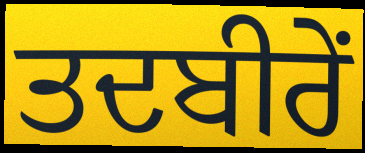
ਤਦਬੀਰੇਂ